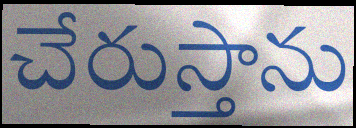
చేరుస్తాను